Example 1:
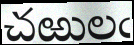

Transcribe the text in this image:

చఱులఁ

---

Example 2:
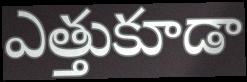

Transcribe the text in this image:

ఎత్తుకూడా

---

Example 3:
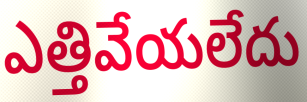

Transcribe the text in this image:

ఎత్తివేయలేదు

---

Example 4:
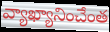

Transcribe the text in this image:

వ్యాఖ్యానించేంత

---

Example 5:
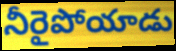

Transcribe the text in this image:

నీరైపోయాడు